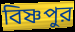
বিষ্ণপুর